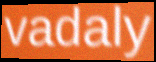
vadaly